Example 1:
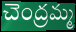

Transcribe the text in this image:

చెంద్రమ్మ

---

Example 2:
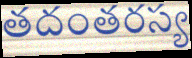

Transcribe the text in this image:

తదంతరస్య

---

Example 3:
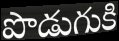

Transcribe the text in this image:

పొడుగుకి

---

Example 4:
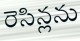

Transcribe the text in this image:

రెసిన్లను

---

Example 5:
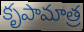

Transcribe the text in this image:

కృపామాత్ర